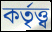
কর্তৃত্ত্ব